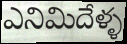
ఎనిమిదేళ్ళ